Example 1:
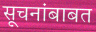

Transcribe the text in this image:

सूचनांबाबत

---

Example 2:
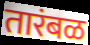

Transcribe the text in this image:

तारंबळ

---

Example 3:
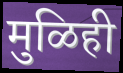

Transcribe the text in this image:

मुळिही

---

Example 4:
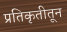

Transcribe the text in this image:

प्रतिकृतीतून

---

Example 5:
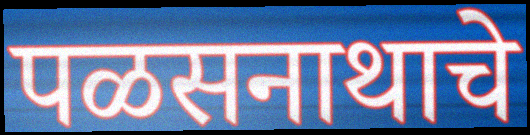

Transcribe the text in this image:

पळसनाथाचे